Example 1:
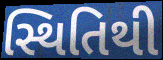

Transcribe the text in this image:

સ્થિતિથી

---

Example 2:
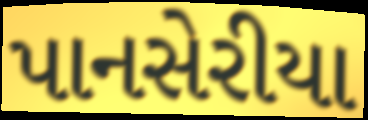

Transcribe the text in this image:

પાનસેરીયા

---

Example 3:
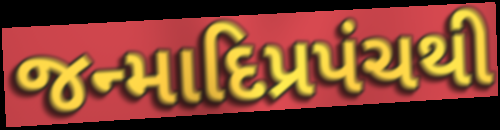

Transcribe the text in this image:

જન્માદિપ્રપંચથી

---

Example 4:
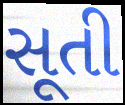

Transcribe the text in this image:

સૂતી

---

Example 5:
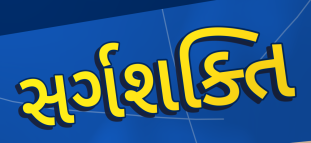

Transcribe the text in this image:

સર્ગશક્તિ